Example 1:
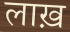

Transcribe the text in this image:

लाख़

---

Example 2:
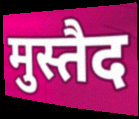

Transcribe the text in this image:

मुस्तैद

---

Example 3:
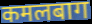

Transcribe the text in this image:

कमलबाग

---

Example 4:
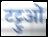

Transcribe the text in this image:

टट्टुओं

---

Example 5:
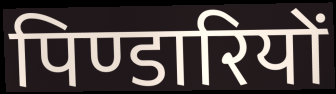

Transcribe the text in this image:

पिण्डारियों